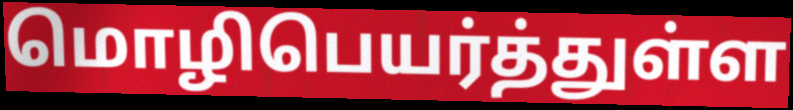
மொழிபெயர்த்துள்ள